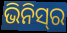
ଭିନିସ୍‌ର